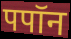
पपॉन